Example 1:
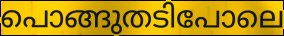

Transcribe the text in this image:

പൊങ്ങുതടിപോലെ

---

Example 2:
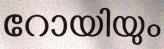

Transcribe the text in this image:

റോയിയും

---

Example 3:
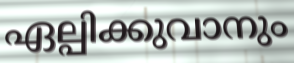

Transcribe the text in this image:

ഏല്പിക്കുവാനും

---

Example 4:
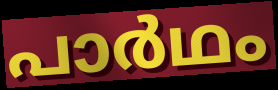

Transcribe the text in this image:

പാർഥം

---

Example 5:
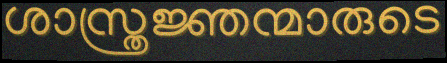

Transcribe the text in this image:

ശാസ്ത്രജ്ഞന്മാരുടെ